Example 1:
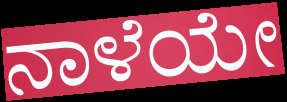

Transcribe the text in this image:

ನಾಳೆಯೇ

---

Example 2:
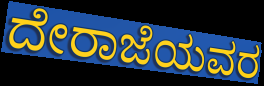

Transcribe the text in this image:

ದೇರಾಜೆಯವರ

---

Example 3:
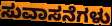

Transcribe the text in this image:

ಸುವಾಸನೆಗಳು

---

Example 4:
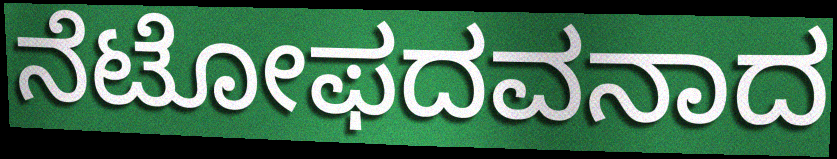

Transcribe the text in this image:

ನೆಟೋಫದವನಾದ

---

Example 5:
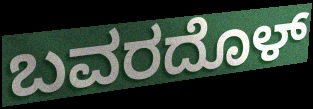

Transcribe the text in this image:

ಬವರದೊಳ್